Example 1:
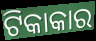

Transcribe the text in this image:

ଟିକାକାର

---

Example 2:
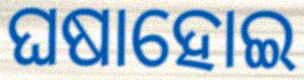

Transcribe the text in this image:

ଘଷାହୋଇ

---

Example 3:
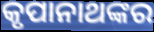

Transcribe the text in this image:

କୃପାନାଥଙ୍କର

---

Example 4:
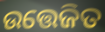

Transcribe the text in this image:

ଉତ୍ତେଜିତ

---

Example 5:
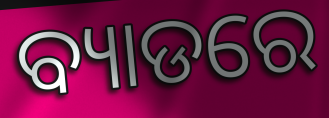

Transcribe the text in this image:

ବ୍ୟାଡରେ